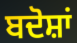
ਬਦੋਸ਼ਾਂ